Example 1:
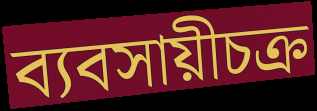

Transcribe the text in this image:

ব্যবসায়ীচক্র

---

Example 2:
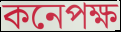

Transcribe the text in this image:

কনেপক্ষ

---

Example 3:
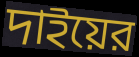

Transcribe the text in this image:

দাইয়ের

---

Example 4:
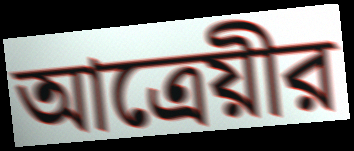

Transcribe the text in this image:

আত্রেয়ীর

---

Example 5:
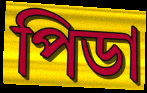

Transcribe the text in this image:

পিডা